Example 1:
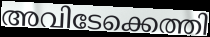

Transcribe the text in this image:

അവിടേക്കെത്തി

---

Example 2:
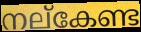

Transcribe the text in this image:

നല്കേണ്ട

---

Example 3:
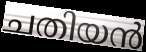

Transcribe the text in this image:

ചതിയൻ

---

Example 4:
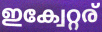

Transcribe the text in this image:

ഇക്വേറ്റര്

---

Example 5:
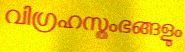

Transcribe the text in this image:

വിഗ്രഹസ്തംഭങ്ങളും